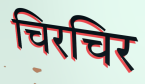
चिरचिर